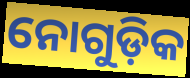
ନୋଗୁଡ଼ିକ